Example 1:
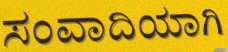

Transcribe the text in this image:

ಸಂವಾದಿಯಾಗಿ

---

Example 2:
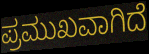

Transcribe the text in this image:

ಪ್ರಮುಖವಾಗಿದೆ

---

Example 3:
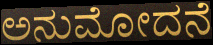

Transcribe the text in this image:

ಅನುಮೋದನೆ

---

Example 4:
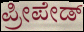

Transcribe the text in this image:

ಪ್ರೀಪೇಡ್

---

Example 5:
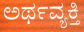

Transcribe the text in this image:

ಅರ್ಥವ್ಯಕ್ತಿ